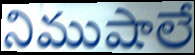
నిముషాలే